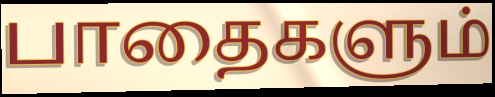
பாதைகளும்